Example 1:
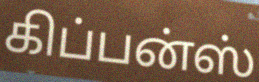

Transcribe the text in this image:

கிப்பன்ஸ்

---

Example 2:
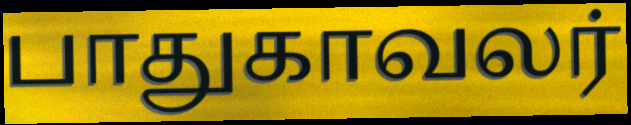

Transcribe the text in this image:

பாதுகாவலர்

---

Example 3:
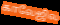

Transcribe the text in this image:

காலேஜில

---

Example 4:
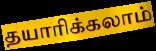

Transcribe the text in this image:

தயாரிக்கலாம்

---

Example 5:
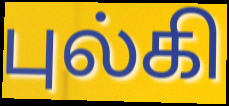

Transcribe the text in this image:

புல்கி